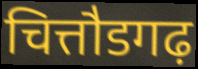
चित्तौडगढ़